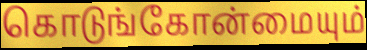
கொடுங்கோன்மையும்